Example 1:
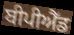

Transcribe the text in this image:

ਬੀਪੀਐੱਡ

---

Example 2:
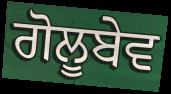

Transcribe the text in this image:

ਗੋਲੂਬੇਵ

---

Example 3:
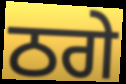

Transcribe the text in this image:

ਠਗੇ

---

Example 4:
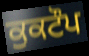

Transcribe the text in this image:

ਕੁਕਟੌਪ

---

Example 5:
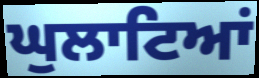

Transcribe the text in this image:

ਘੁਲਾਟਿਆਂ